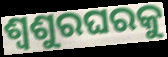
ଶ୍ୱଶୁରଘରକୁ